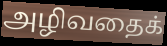
அழிவதைக்